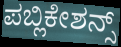
ಪಬ್ಲಿಕೇಶನ್ಸ್